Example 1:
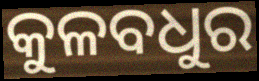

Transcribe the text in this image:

କୁଳବଧୁର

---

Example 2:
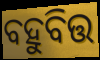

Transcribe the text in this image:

ବହୁବିତ୍ତ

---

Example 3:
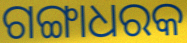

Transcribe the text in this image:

ଗଙ୍ଗାଧରକ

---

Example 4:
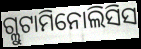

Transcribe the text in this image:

ଗ୍ଲୁଟାମିନୋଲିସିସ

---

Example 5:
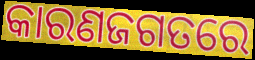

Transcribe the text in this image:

କାରଣଜଗତରେ